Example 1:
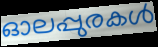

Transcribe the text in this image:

ഓലപ്പുരകൾ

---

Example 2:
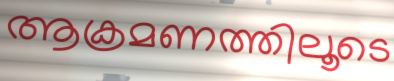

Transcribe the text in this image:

ആക്രമണത്തിലൂടെ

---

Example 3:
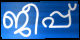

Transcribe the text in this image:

ജീപ്പ്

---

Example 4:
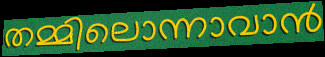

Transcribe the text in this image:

തമ്മിലൊന്നാവാൻ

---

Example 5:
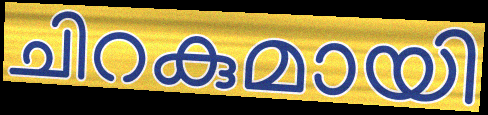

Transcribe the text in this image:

ചിറകുമായി